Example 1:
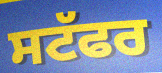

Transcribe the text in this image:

ਸਟੱਫਰ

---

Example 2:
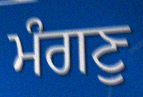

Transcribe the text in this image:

ਮੰਗਣੁ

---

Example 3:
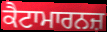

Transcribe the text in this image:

ਕੈਟਾਮਾਰਨਜ਼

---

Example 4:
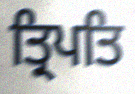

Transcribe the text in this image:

ਤ੍ਰਿਪਤਿ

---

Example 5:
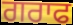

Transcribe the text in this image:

ਗਰਾਫ